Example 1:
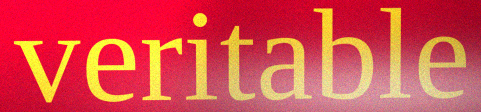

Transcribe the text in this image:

veritable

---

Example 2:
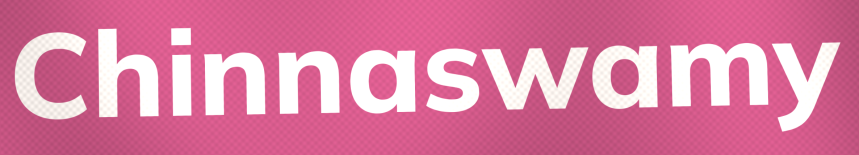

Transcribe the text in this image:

Chinnaswamy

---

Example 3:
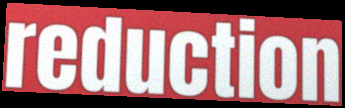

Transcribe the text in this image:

reduction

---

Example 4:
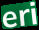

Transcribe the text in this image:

eri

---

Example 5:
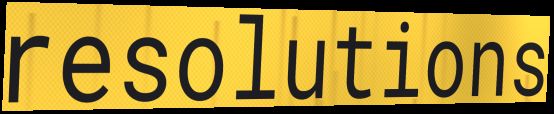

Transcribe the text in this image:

resolutions